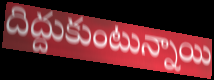
దిద్దుకుంటున్నాయి